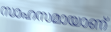
സാഹസമായാണ്